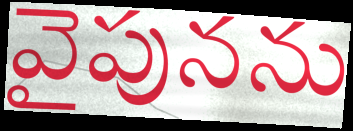
వైపునను